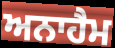
ਅਨਾਹੈਮ